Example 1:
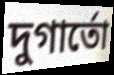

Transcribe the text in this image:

দুগার্তো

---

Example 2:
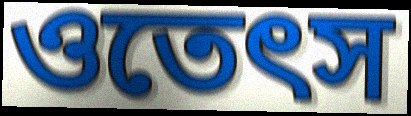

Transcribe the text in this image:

ওতেৎস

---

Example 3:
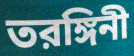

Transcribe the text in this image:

তরঙ্গিনী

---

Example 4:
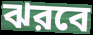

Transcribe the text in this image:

ঝরবে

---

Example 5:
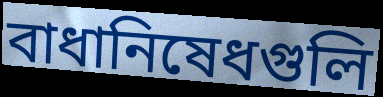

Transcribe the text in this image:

বাধানিষেধগুলি